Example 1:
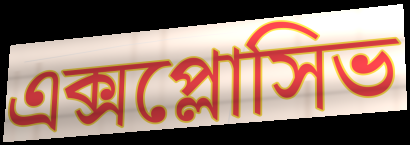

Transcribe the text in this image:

এক্সপ্লোসিভ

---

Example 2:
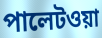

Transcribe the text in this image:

পালেটওয়া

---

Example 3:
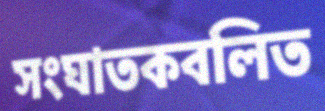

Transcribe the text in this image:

সংঘাতকবলিত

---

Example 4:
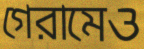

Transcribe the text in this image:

গেরামেও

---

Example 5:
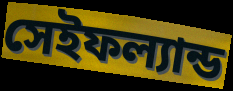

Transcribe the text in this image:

সেইফল্যান্ড